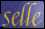
selle